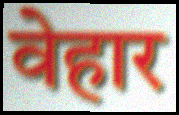
वेहार